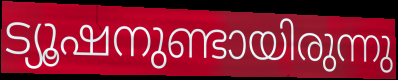
ട്യൂഷനുണ്ടായിരുന്നു